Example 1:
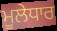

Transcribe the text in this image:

ਮੂਲੇਧਾਰ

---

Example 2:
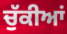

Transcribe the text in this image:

ਚੁੱਕੀਆਂ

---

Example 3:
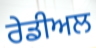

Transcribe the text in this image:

ਰੇਡੀਅਲ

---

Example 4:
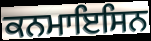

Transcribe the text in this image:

ਕਨਮਾਇਸਿਨ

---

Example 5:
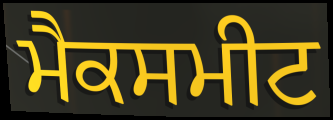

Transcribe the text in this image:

ਮੈਕਸਮੀਟ